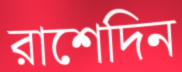
রাশেদিন